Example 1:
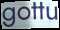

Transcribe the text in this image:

gottu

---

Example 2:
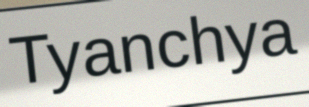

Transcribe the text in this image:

Tyanchya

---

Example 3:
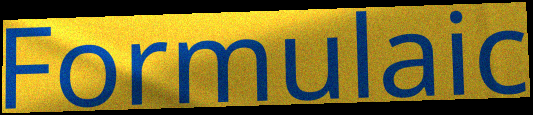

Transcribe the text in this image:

Formulaic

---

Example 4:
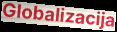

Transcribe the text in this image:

Globalizacija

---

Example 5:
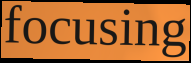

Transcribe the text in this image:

focusing